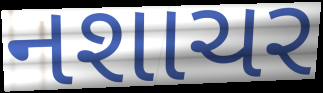
નશાચર